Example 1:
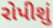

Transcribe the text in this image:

રોપીશું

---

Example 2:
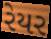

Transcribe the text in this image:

રેયર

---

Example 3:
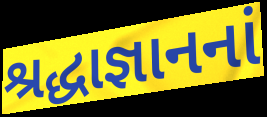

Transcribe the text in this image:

શ્રદ્ધાજ્ઞાનનાં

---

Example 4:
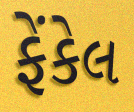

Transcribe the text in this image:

ફેંકેલ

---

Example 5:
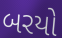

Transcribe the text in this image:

બરયો